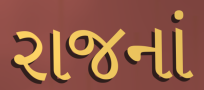
રાજનાં